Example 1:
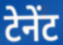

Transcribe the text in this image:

टेनेंट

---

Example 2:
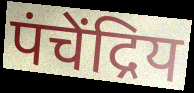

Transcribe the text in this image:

पंचेंद्रिय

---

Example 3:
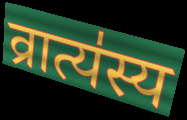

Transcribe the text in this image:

व्रात्य॑स्य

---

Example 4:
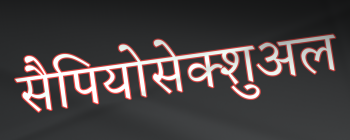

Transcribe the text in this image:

सैपियोसेक्शुअल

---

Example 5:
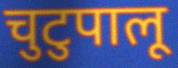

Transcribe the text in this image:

चुटुपालू